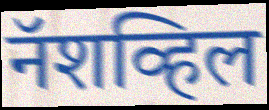
नॅशव्हिल